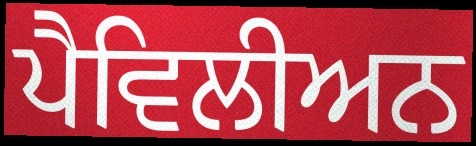
ਪੈਵਿਲੀਅਨ